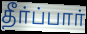
தீர்ப்பார்